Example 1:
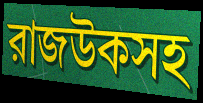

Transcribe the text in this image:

রাজউকসহ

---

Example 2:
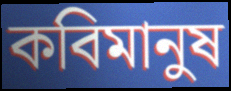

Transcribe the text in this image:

কবিমানুষ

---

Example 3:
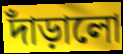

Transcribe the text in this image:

দাঁড়ালো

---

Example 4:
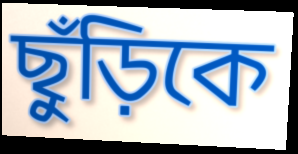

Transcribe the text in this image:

ছুঁড়িকে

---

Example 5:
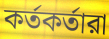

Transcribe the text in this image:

কর্তকর্তারা